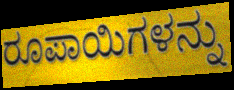
ರೂಪಾಯಿಗಳನ್ನು